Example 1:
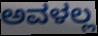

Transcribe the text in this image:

ಅವಳಲ್ಲ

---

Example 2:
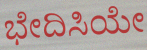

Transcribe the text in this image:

ಭೇದಿಸಿಯೇ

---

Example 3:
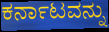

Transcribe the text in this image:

ಕರ್ನಾಟವನ್ನು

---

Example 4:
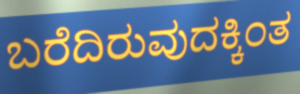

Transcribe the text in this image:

ಬರೆದಿರುವುದಕ್ಕಿಂತ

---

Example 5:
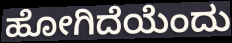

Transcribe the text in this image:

ಹೋಗಿದೆಯೆಂದು